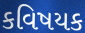
કવિષયક